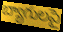
బ్యాగులపై